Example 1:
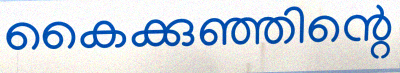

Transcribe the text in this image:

കൈക്കുഞ്ഞിന്റെ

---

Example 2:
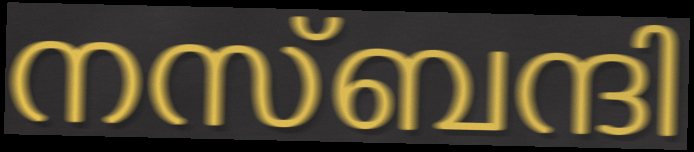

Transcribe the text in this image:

നസ്ബന്ദി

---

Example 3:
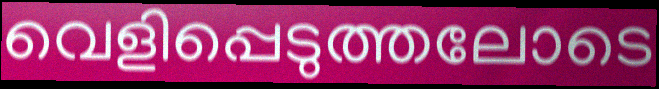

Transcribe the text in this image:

വെളിപ്പെടുത്തലോടെ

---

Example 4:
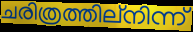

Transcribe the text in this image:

ചരിത്രത്തില്നിന്ന്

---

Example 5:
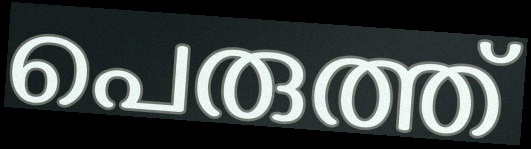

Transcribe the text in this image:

പെരുത്ത്